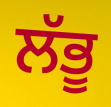
ਲੱਭੂ